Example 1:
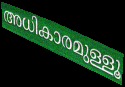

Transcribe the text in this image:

അധികാരമുള്ളൂ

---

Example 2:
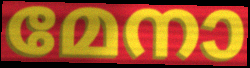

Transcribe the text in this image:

മേനാ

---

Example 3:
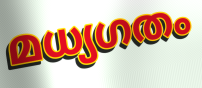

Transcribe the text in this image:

മധ്യഗതം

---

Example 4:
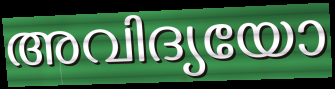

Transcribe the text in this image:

അവിദ്യയോ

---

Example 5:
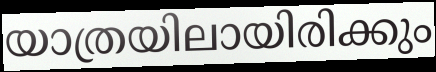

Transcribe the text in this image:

യാത്രയിലായിരിക്കും